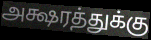
அக்ஷரத்துக்கு